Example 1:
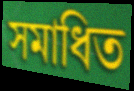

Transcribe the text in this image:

সমাধিত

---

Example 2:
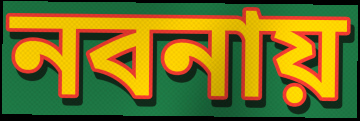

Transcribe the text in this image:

নবনায়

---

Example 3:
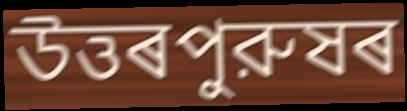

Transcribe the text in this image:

উত্তৰপুৰুষৰ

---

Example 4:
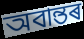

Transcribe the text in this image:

অবান্তৰ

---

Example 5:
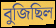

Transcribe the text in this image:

বুজিছিল